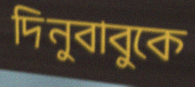
দিনুবাবুকে